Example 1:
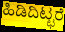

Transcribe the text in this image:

ಹಿಡಿದಿಟ್ಟರೆ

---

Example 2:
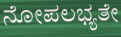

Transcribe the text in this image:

ನೋಪಲಭ್ಯತೇ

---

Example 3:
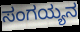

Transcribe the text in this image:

ಸಂಗಯ್ಯನ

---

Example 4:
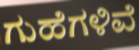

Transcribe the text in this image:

ಗುಹೆಗಳಿವೆ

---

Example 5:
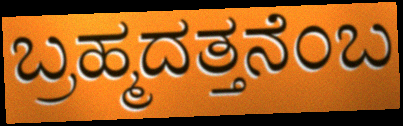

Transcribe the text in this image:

ಬ್ರಹ್ಮದತ್ತನೆಂಬ